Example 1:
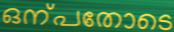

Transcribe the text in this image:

ഒന്പതോടെ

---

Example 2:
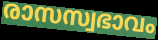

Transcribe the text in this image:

രാസസ്വഭാവം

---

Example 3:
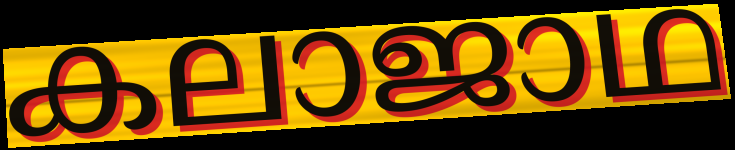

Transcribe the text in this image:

കലാജാഥ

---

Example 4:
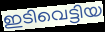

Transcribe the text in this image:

ഇടിവെട്ടിയ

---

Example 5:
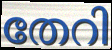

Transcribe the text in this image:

തേറി